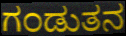
ಗಂಡುತನ